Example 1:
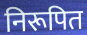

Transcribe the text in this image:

निरूपित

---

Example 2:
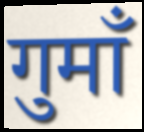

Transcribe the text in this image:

गुमाँ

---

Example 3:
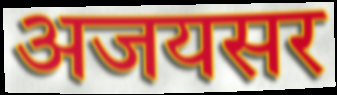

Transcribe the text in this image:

अजयसर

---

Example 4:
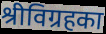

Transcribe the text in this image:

श्रीविग्रहका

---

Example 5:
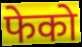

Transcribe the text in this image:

फेको